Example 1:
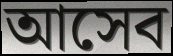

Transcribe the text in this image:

আসেব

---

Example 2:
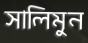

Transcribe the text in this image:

সালিমুন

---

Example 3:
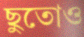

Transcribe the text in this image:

ছুতোও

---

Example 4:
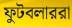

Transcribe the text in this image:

ফুটবলাররা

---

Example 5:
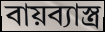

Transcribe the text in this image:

বায়ব্যাস্ত্র